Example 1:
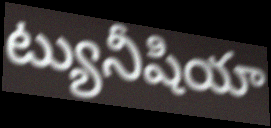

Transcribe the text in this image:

ట్యునీషియా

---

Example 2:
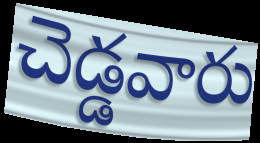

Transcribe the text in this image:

చెడ్డవారు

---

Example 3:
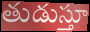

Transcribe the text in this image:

తుడుస్తూ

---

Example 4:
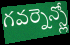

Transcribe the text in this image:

గవర్నెన్స్లో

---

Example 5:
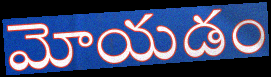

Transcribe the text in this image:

మోయడం